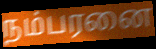
நம்பரனை